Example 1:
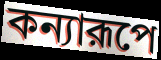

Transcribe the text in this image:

কন্যারূপে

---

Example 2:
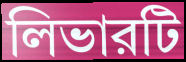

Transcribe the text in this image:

লিভারটি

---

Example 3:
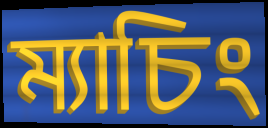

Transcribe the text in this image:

ম্যাচিং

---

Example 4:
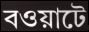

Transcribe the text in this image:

বওয়াটে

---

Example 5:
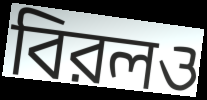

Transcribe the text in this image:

বিরলও